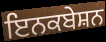
ਇਨਕਬੇਸ਼ਨ